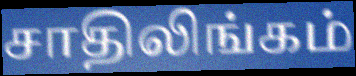
சாதிலிங்கம்